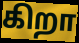
கிறா